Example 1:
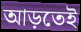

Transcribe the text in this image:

আড়তেই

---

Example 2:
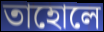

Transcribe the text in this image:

তাহোলে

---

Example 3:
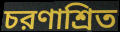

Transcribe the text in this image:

চরণাশ্রিত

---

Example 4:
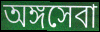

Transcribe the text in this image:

অঙ্গসেবা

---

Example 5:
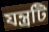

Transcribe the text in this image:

যন্ত্রটি